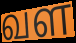
வள